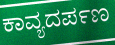
ಕಾವ್ಯದರ್ಪಣ